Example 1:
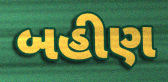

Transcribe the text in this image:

બહીણ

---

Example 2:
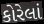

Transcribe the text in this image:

કોરેલાં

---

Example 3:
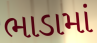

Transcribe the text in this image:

ભાડામાં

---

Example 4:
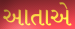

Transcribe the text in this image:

આતાએ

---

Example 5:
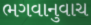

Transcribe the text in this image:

ભગવાનુવાચ